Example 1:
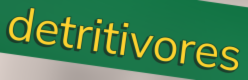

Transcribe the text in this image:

detritivores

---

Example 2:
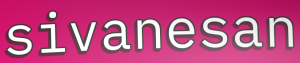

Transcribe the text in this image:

sivanesan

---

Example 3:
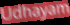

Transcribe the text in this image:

Udhayam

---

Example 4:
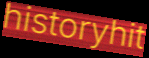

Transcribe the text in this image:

historyhit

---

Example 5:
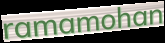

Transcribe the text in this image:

ramamohan